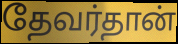
தேவர்தான்